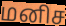
மனிச